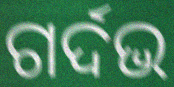
ଗର୍ଦଭ